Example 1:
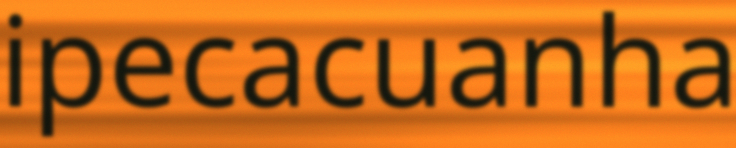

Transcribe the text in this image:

ipecacuanha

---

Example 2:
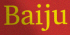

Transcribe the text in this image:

Baiju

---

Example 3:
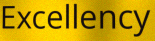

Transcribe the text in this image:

Excellency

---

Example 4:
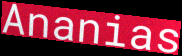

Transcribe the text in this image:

Ananias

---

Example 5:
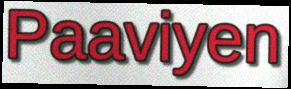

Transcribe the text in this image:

Paaviyen